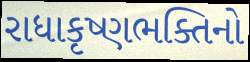
રાધાકૃષ્ણભક્તિનો